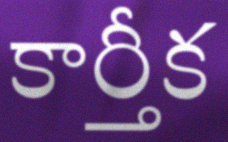
కార్తీక